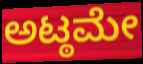
ಅಟ್ಠಮೇ